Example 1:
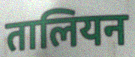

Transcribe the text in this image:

तालियन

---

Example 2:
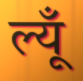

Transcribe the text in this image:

ल्यूँ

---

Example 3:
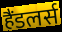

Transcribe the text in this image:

हैंडलर्स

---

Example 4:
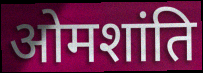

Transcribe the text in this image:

ओमशांति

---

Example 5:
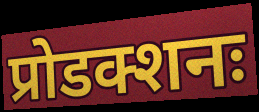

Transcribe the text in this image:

प्रोडक्शनः